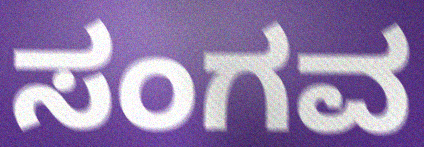
ಸಂಗವ